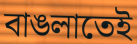
বাঙলাতেই